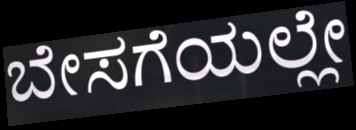
ಬೇಸಗೆಯಲ್ಲೇ